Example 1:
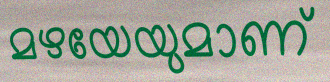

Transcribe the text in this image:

മഴയേയുമാണ്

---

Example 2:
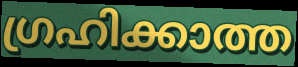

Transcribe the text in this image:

ഗ്രഹിക്കാത്ത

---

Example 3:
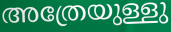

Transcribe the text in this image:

അത്രേയുള്ളു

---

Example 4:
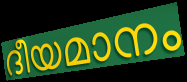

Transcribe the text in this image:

ദീയമാനം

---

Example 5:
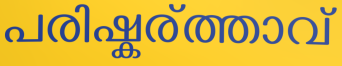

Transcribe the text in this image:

പരിഷ്കര്ത്താവ്